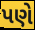
પણે